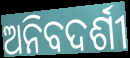
ଅନିବଦର୍ଶୀ